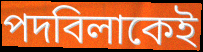
পদবিলাকেই